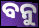
ବନୁ